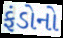
ફંડોનો